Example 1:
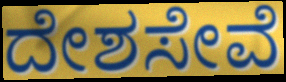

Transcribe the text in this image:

ದೇಶಸೇವೆ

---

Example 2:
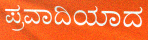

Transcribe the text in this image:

ಪ್ರವಾದಿಯಾದ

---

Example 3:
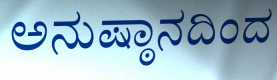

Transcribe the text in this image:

ಅನುಷ್ಠಾನದಿಂದ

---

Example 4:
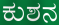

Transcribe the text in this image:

ಕುಶನ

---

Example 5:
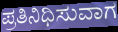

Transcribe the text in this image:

ಪ್ರತಿನಿಧಿಸುವಾಗ